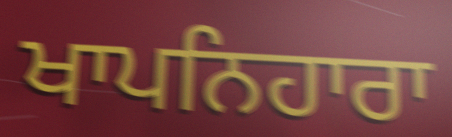
ਖਾਪਨਿਹਾਰਾ